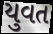
યુવત